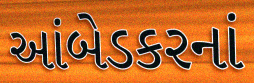
આંબેડકરનાં